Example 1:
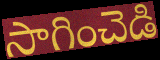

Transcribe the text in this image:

సాగించెడి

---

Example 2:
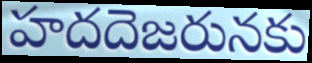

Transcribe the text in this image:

హదదెజరునకు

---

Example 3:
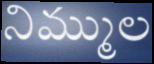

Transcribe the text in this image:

నిమ్ముల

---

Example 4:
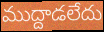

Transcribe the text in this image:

ముద్దాడలేదు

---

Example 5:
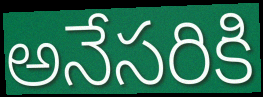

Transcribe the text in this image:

అనేసరికి